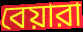
বেয়ারা